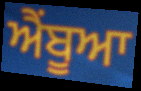
ਐਂਬੂਆ